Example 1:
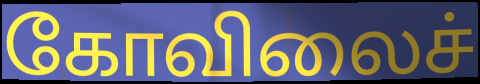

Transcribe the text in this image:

கோவிலைச்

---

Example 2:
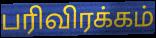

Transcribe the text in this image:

பரிவிரக்கம்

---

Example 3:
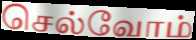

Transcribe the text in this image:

செல்வோம்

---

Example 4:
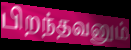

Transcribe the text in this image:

பிறந்தவனும்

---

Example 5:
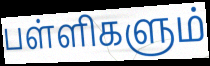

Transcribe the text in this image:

பள்ளிகளும்